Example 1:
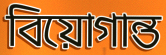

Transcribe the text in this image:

বিয়োগান্ত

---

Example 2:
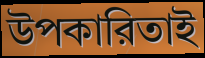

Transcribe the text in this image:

উপকারিতাই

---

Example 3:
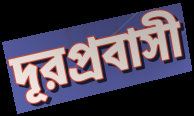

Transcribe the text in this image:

দূরপ্রবাসী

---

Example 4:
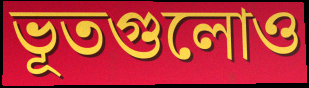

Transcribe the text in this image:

ভূতগুলোও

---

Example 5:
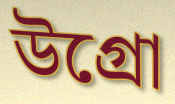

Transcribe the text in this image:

উগ্রো